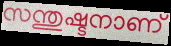
സന്തുഷ്ടനാണ്